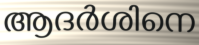
ആദർശിനെ